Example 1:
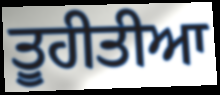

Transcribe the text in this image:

ਤੂਹੀਤੀਆ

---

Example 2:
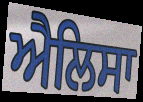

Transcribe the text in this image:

ਐਲਿਸਾ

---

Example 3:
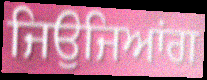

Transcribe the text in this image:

ਜਿਉਜਿਆਂਗ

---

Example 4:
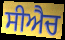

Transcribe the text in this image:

ਸੀਐਚ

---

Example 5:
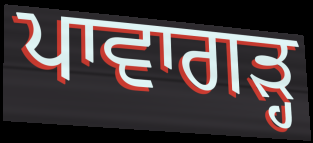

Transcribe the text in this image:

ਪਾਵਾਗੜ੍ਹ